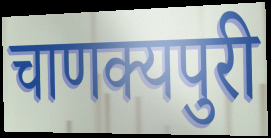
चाणक्यपुरी